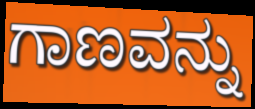
ಗಾಣವನ್ನು